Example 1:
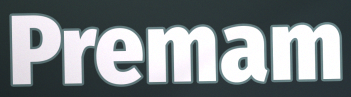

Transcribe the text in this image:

Premam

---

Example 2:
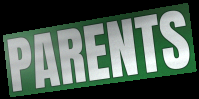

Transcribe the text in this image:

PARENTS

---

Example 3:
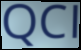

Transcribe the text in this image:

QCI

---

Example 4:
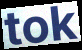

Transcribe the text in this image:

tok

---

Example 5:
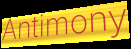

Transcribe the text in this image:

Antimony